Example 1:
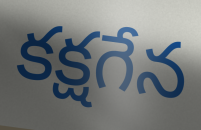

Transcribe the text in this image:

కక్షగేన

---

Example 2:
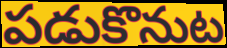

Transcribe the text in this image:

పడుకొనుట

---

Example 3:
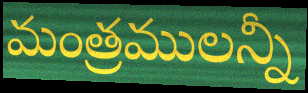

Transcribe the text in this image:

మంత్రములన్నీ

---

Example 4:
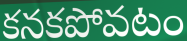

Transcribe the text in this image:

కనకపోవటం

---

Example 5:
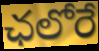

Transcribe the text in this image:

ఛలోరే